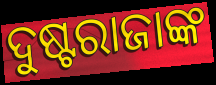
ଦୁଷ୍ଟରାଜାଙ୍କ